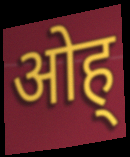
ओह्